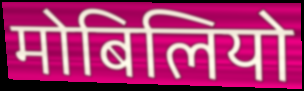
मोबिलियो